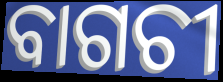
ବାଗଚୀ